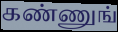
கண்ணுங்